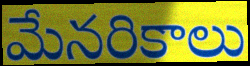
మేనరికాలు